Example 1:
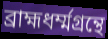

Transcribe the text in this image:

ব্রাহ্মধর্ম্মগ্রন্থে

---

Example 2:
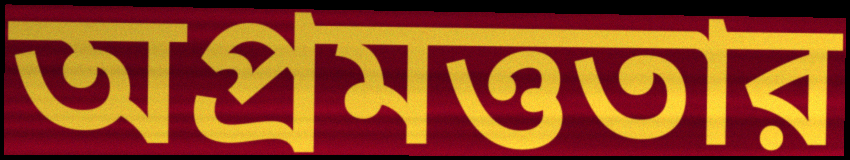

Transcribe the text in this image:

অপ্রমত্ততার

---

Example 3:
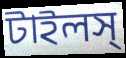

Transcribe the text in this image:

টাইলস্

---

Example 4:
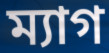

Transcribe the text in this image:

ম্যাগ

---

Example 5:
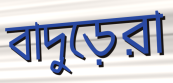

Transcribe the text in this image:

বাদুড়েরা